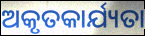
ଅକୃତକାର୍ଯ୍ୟତା